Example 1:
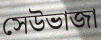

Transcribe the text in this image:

সেউভাজা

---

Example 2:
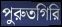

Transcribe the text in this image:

পুরুতগিরি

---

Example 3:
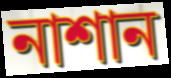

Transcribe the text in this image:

নাশান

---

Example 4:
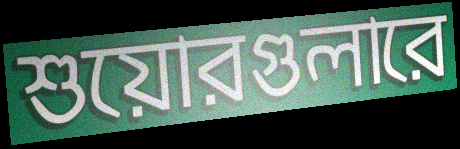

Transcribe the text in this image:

শুয়োরগুলারে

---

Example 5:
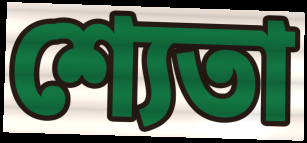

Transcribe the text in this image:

শ্যেতা